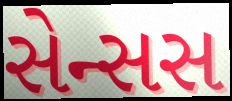
સેન્સસ